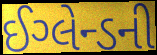
ઈગ્લેન્ડની